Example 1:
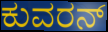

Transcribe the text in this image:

ಕುವರನ್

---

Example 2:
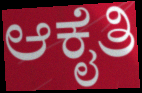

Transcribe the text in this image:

ಆಕೈತಿ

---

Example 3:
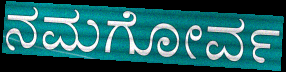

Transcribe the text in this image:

ನಮಗೋರ್ವ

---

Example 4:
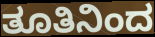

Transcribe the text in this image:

ತೂತಿನಿಂದ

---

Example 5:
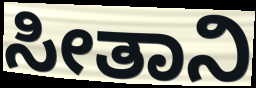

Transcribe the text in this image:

ಸೀತಾನಿ